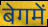
बेगमें